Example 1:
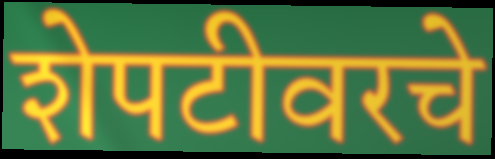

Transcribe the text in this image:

शेपटीवरचे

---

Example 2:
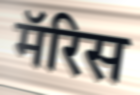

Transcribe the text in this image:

मॅरिस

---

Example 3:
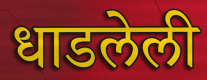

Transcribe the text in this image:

धाडलेली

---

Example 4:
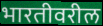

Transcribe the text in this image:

भारतीवरील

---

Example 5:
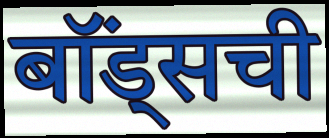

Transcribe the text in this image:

बॉंड्सची